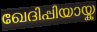
ഖേദിപ്പിയായ്കു